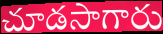
చూడసాగారు